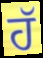
ਹੱ